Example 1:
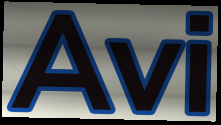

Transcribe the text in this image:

Avi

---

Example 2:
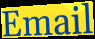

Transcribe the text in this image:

Email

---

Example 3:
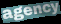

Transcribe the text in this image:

agency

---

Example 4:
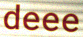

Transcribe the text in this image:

deee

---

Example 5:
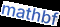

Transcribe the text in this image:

mathbf